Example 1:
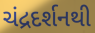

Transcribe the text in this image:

ચંદ્રદર્શનથી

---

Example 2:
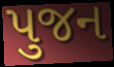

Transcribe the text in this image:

પુજન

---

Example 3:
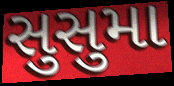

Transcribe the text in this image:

સુસુમા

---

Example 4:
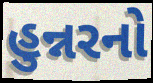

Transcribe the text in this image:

હુન્નરનો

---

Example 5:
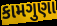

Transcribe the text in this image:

કામગુણા